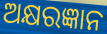
ଅକ୍ଷରଜ୍ଞାନ